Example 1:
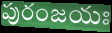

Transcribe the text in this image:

పురంజయః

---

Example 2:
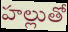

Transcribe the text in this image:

హల్లుతో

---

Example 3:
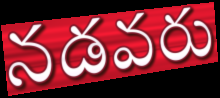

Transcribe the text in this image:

నడవరు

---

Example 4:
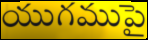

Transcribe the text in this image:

యుగముపై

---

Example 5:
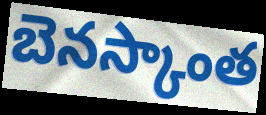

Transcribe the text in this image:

బెనస్కాంత